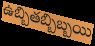
ఉబ్బితబ్బిబ్బయి